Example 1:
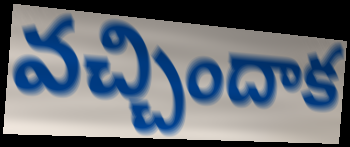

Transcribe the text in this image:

వచ్చిందాక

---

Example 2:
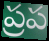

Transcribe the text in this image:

ప్రప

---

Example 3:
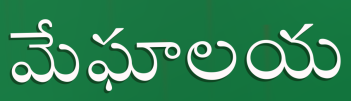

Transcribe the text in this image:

మేఘాలయ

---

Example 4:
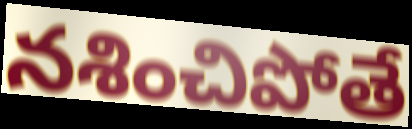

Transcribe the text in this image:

నశించిపోతే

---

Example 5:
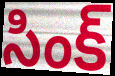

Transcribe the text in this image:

సింక్